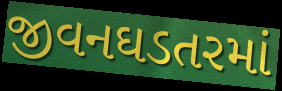
જીવનઘડતરમાં